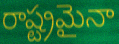
రాష్ట్రమైనా